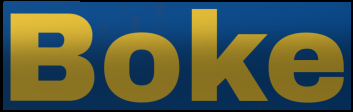
Boke